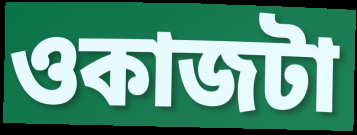
ওকাজটা